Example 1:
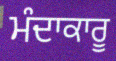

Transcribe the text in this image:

ਮੰਦਾਕਾਰੂ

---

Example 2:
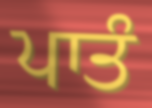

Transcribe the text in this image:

ਪਾਤੰ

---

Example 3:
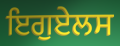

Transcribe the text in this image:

ਇਗੁਏਲਸ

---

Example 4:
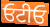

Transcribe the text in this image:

ਓਟੀਓ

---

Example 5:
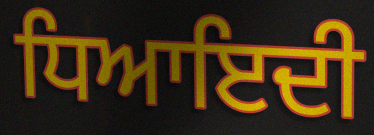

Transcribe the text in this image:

ਧਿਆਇਦੀ